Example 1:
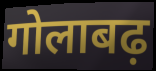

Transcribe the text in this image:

गोलाबढ़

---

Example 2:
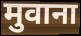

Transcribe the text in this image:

मुवाना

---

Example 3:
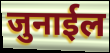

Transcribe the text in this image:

जुनाईल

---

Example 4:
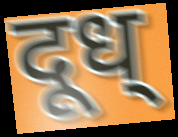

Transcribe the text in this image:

दूध्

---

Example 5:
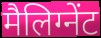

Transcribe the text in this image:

मैलिग्नेंट